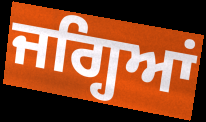
ਜਗ੍ਹਿਆਂ